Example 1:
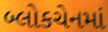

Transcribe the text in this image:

બ્લોકચેનમાં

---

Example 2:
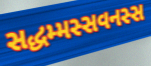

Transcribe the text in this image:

સદ્ધમ્મસ્સવનસ્સ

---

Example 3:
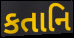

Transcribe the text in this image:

કતાનિ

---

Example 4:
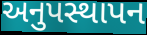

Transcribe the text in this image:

અનુપસ્થાપન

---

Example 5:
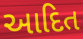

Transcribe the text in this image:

આદિત